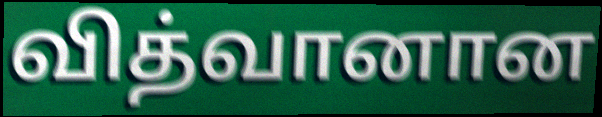
வித்வானான